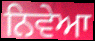
ਨਿਵੇਆ